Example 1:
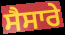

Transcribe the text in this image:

ਸੈਸਾਰੇ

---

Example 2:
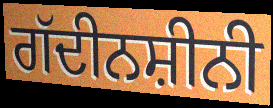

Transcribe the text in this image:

ਗੱਦੀਨਸ਼ੀਨੀ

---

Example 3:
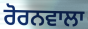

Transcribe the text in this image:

ਰੋਰਨਵਾਲਾ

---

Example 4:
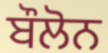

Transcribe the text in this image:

ਬੌਲੋਨ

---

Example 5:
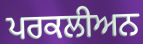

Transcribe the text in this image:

ਪਰਕਲੀਅਨ